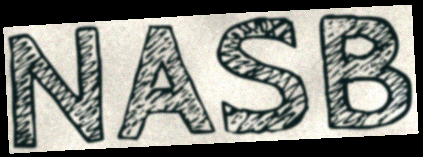
NASB